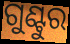
ଗୁଣ୍ଟୁର